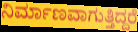
ನಿರ್ಮಾಣವಾಗುತ್ತಿದ್ದರೆ